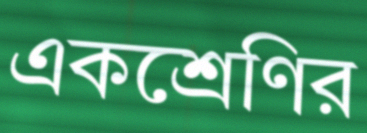
একশ্রেণির